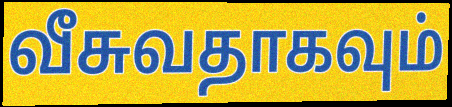
வீசுவதாகவும்